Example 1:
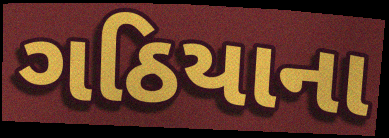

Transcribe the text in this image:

ગઠિયાના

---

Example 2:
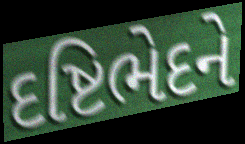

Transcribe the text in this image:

દષ્ટિભેદને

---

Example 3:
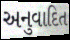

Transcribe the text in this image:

અનુવાદિત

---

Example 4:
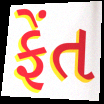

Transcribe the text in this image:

ફેંત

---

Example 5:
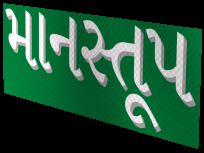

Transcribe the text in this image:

માનસ્તૂપ